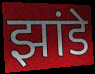
झांडे